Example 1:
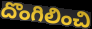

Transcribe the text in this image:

దొంగిలించి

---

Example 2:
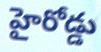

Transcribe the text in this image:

హైరోడ్డు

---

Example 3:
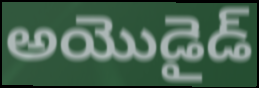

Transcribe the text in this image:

అయొడైడ్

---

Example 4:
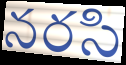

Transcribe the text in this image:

నరసి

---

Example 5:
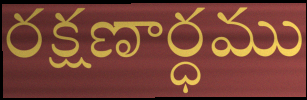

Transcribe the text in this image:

రక్షణార్ధము